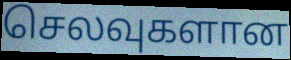
செலவுகளான